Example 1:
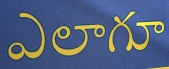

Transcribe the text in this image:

ఎలాగూ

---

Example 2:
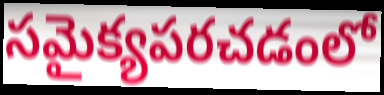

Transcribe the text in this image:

సమైక్యపరచడంలో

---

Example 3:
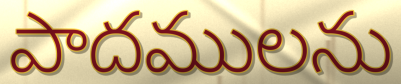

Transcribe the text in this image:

పాదములను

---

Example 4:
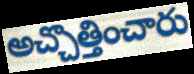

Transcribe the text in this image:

అచ్చొత్తించారు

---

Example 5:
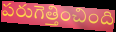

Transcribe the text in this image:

పరుగెత్తించింది